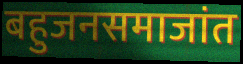
बहुजनसमाजांत